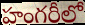
హంగరీలో